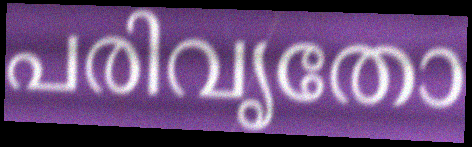
പരിവൃതോ